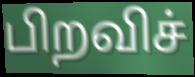
பிறவிச்